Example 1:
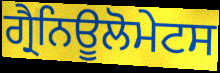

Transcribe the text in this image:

ਗ੍ਰੈਨਿਊਲੋਮੇਟਸ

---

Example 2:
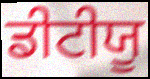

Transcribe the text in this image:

ਡੀਟੀਯੂ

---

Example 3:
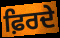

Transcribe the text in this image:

ਫ਼ਿਰਦੇ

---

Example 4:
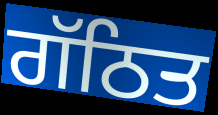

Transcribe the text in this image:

ਗੱਠਿਤ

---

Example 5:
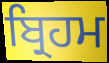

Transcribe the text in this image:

ਬ੍ਰਿਹਮ